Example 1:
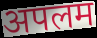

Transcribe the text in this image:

अपलम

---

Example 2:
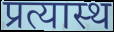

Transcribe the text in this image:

प्रत्यास्थ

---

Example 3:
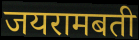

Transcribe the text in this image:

जयरामबती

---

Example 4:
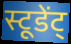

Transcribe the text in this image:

स्टूडेंट्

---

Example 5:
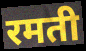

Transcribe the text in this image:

रमती